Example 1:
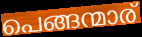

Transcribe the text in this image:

പെങ്ങന്മാര്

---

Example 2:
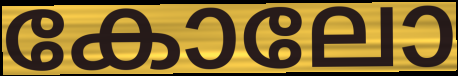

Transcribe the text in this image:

കോലോ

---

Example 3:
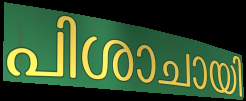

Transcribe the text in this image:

പിശാചായി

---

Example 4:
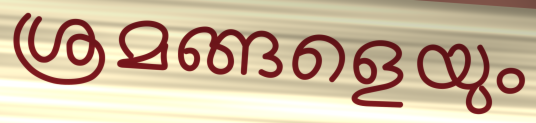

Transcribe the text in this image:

ശ്രമങ്ങളെയും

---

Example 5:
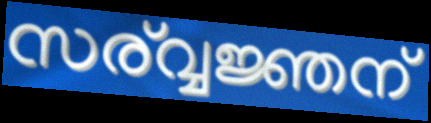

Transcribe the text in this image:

സര്വ്വജ്ഞന്